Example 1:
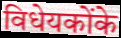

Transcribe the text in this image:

विधेयकोंके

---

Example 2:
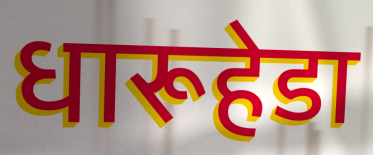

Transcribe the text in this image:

धारूहेडा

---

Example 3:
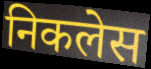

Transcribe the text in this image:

निकलेस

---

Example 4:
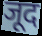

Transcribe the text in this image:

जूद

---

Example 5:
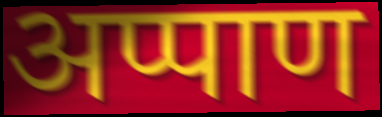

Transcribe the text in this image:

अप्पाण